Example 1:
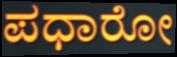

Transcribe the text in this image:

ಪಧಾರೋ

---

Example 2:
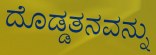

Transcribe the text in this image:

ದೊಡ್ಡತನವನ್ನು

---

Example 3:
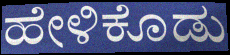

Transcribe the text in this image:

ಹೇಳಿಕೊಡು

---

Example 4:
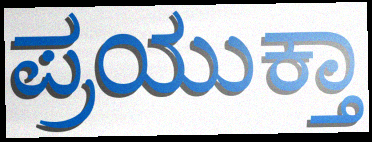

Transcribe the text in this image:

ಪ್ರಯುಕ್ತಾ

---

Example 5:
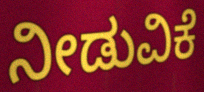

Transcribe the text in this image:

ನೀಡುವಿಕೆ